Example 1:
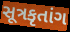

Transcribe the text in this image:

સૂત્રકૃતાંગ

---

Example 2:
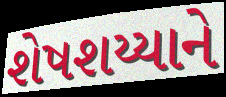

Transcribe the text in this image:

શેષશય્યાને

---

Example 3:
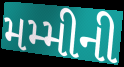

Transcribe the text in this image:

મમ્મીની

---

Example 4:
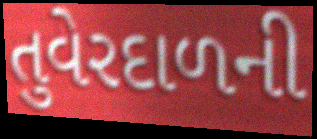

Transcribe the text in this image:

તુવેરદાળની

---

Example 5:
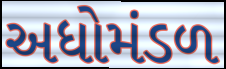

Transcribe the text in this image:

અધોમંડળ